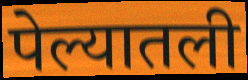
पेल्यातली